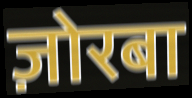
ज़ोरबा